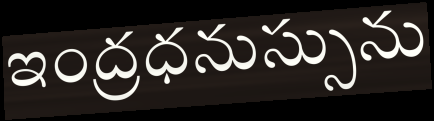
ఇంద్రధనుస్సును